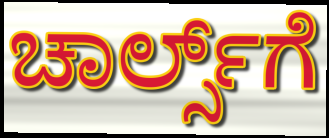
ಚಾರ್ಲ್ಸ್‌ಗೆ